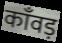
काँवड़